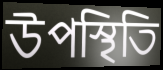
উপস্থিতি